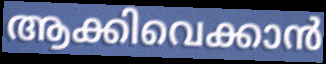
ആക്കിവെക്കാൻ